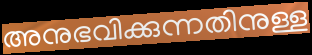
അനുഭവിക്കുന്നതിനുള്ള